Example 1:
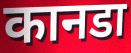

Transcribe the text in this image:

कानडा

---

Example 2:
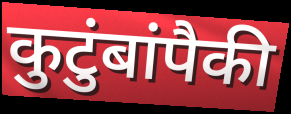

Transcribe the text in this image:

कुटुंबांपैकी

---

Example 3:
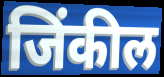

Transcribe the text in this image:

जिंकील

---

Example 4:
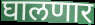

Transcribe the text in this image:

घालणार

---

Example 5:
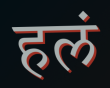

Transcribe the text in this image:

हलं